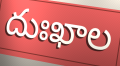
దుఃఖాల